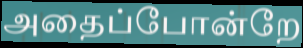
அதைப்போன்றே